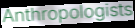
Anthropologists